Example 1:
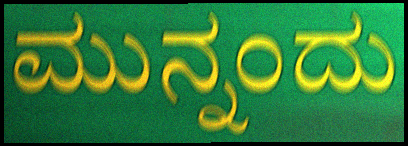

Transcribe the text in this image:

ಮುನ್ನಂದು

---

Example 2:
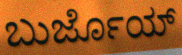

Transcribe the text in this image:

ಬುರ್ಜೊಯ್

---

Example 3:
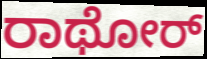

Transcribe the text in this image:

ರಾಥೋರ್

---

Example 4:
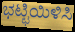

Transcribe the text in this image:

ಭಟ್ಟಿಯಿಳಿಸಿ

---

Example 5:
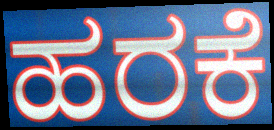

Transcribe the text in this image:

ಹರಕೆ